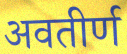
अवतीर्ण